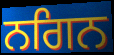
ਨਗਿਨ